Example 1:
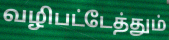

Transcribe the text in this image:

வழிபட்டேத்தும்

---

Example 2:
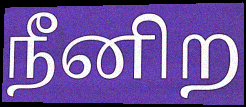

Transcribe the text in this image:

நீனிற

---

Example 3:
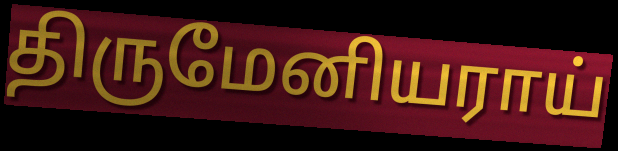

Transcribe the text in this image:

திருமேனியராய்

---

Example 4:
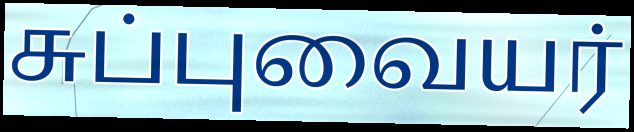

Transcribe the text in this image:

சுப்புவையர்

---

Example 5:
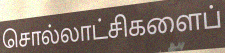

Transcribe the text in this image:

சொல்லாட்சிகளைப்